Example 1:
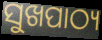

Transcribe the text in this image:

ସୁଖପାଠ୍ୟ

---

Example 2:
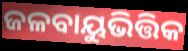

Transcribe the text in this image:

ଜଳବାୟୁଭିତ୍ତିକ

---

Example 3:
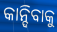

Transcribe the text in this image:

କାନ୍ଦିବାକୁ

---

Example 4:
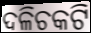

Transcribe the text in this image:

ଦଳିଚକଟି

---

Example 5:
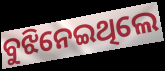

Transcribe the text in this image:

ବୁଝିନେଇଥିଲେ